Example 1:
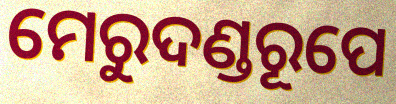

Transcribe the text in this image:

ମେରୁଦଣ୍ଡରୂପେ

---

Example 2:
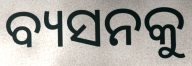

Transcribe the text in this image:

ବ୍ୟସନକୁ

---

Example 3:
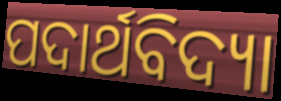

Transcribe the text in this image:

ପଦାର୍ଥବିଦ୍ୟା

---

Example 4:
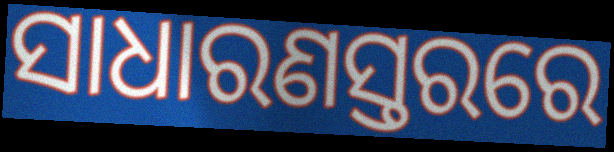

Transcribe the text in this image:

ସାଧାରଣସ୍ତରରେ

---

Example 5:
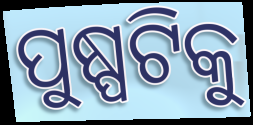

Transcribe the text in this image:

ପୁଷ୍ପଟିକୁ